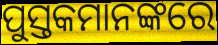
ପୁସ୍ତକମାନଙ୍କରେ